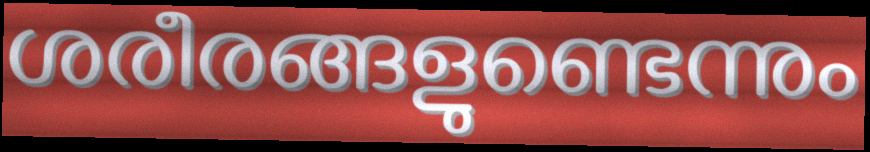
ശരീരങ്ങളുണ്ടെന്നും